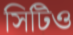
সিটিও